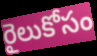
రైలుకోసం